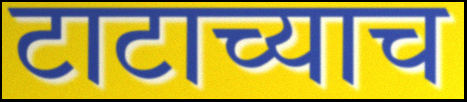
टाटाच्याच